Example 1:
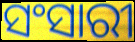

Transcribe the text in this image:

ସଂସାରୀ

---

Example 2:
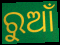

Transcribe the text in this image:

ରୁଆଁ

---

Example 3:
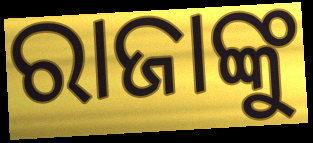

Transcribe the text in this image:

ରାଜାଙ୍କୁ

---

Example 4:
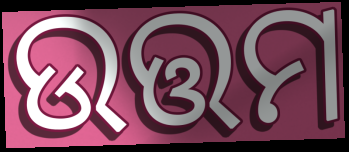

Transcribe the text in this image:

ଉତ୍ତମ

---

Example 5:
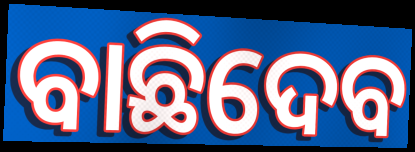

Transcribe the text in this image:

ବାଛିଦେବ